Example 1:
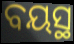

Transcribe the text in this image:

ବୟସ୍ଥ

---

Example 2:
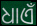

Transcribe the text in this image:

ଧାଏଁ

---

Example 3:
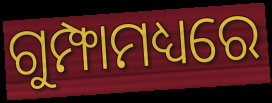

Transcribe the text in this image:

ଗୁମ୍ଫାମଧ୍ୟରେ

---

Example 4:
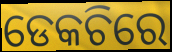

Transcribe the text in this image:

ଡେକଚିରେ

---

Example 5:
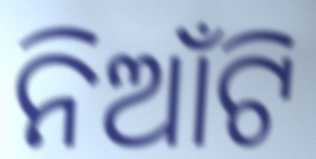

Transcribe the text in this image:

ନିଆଁଟି